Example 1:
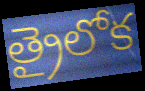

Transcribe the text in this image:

త్రైలోక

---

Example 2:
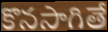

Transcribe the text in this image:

కొనసాగితే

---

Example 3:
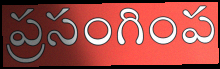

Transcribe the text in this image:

ప్రసంగింప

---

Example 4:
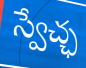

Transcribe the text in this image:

స్వేచ్ఛ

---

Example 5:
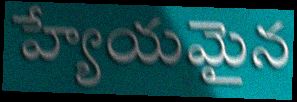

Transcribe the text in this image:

హ్యేయమైన